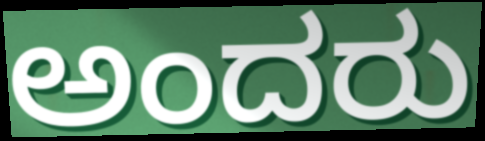
ಅಂದರು